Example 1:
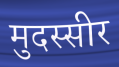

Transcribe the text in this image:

मुदस्सीर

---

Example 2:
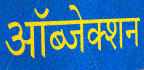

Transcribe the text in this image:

ऑब्जेक्शन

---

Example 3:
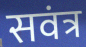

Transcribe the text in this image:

सवंत्र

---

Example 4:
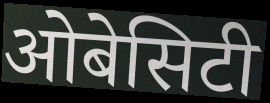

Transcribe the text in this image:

ओबेसिटी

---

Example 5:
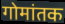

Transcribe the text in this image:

गोमांतक